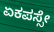
ಏಕಪಸ್ಸೇ